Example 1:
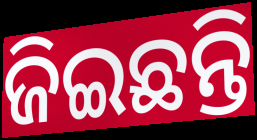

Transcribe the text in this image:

ଜିଇଛନ୍ତି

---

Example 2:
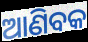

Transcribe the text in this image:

ଆଣିବକ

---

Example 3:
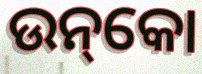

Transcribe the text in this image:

ଉନ୍‌କୋ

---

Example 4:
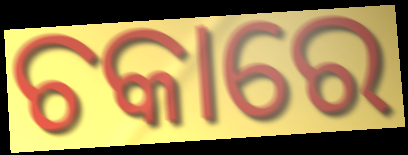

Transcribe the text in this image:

ଚକାରେ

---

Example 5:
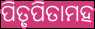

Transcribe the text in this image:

ପିତୃପିତାମହ